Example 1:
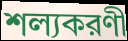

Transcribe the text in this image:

শল্যকরণী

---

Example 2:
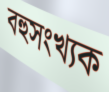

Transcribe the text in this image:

বহুসংখ্যক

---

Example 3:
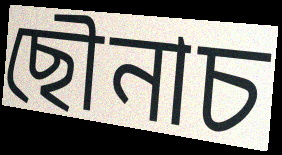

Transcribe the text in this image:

ছৌনাচ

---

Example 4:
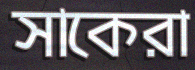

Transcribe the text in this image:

সাকেরা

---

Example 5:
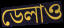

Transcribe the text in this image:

ডেলাও